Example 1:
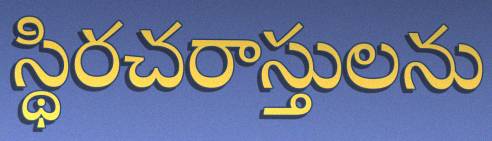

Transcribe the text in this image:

స్థిరచరాస్తులను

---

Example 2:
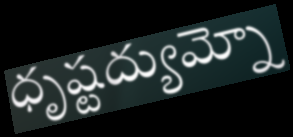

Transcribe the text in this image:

ధృష్టద్యుమ్నో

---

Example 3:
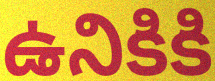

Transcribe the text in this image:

ఉనికికి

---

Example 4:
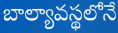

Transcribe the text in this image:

బాల్యావస్థలోనే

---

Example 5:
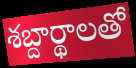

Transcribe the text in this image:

శబ్దార్థాలతో